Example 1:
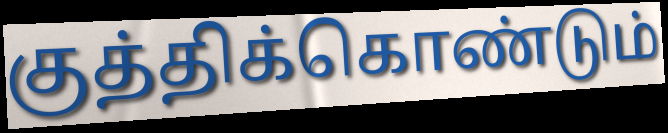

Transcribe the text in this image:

குத்திக்கொண்டும்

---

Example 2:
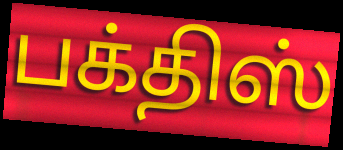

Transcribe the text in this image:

பக்திஸ்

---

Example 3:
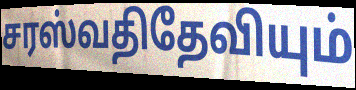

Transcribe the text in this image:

சரஸ்வதிதேவியும்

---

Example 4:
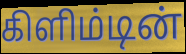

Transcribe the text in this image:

கிளிம்டின்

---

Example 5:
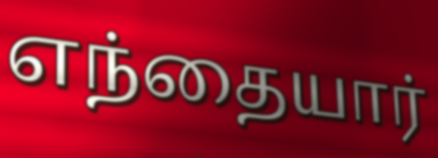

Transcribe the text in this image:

எந்தையார்